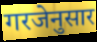
गरजेनुसार